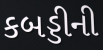
કબડ્ડીની